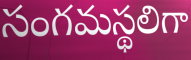
సంగమస్థలిగా